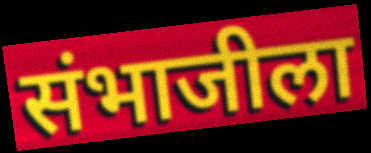
संभाजीला